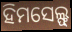
ହିମସେଲ୍ଫ୍